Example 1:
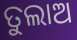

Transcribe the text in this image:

ତୁଲାଅ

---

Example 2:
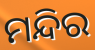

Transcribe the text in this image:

ମନ୍ଦିର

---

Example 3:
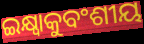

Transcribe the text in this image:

ଇକ୍ଷ୍ୱାକୁବଂଶୀୟ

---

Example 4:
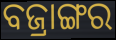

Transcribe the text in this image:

ବଜ୍ରାଙ୍ଗର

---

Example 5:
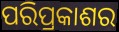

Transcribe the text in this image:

ପରିପ୍ରକାଶର